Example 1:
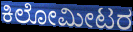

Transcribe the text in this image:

ಕಿಲೋಮೀಟರ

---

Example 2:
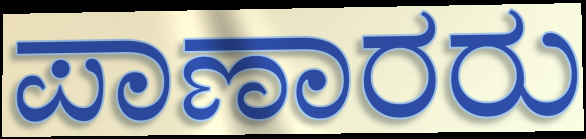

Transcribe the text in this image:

ಪಾಣಾರರು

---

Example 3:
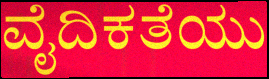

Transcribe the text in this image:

ವೈದಿಕತೆಯು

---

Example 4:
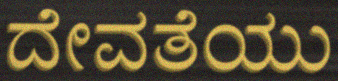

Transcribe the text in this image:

ದೇವತೆಯು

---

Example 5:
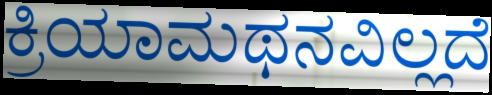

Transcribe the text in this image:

ಕ್ರಿಯಾಮಥನವಿಲ್ಲದೆ